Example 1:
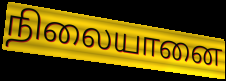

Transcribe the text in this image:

நிலையானை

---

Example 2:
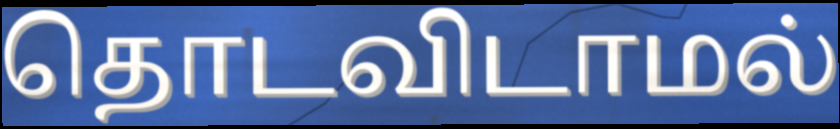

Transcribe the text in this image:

தொடவிடாமல்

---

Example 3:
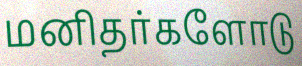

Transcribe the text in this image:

மனிதர்களோடு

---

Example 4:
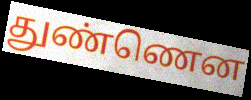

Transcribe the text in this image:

துண்ணென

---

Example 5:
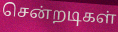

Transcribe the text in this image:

சென்றடிகள்